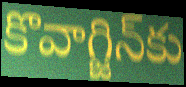
కొవాగ్జిన్‌కు